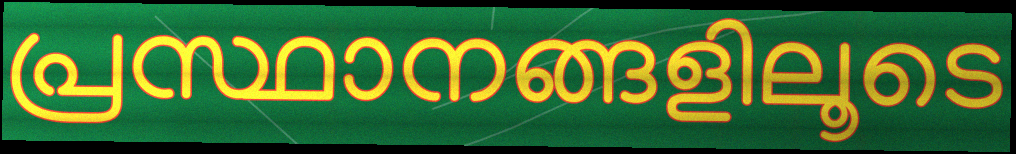
പ്രസ്ഥാനങ്ങളിലൂടെ